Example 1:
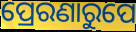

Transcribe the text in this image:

ପ୍ରେରଣାରୁପେ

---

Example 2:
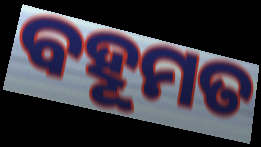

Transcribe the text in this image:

ବହୂମତ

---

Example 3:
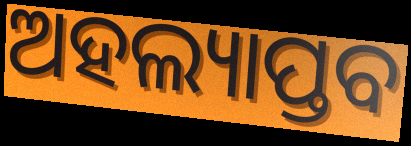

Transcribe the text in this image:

ଅହଲ୍ୟାପ୍ତବ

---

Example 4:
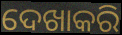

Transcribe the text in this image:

ଦେଖାକରି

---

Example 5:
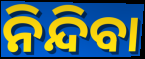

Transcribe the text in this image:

ନିନ୍ଦିବା